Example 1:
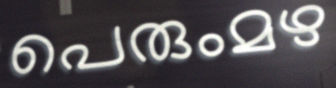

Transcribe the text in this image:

പെരുംമഴ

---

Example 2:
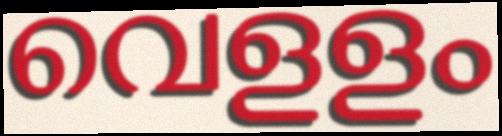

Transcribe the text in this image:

വെളളം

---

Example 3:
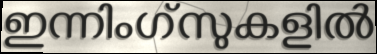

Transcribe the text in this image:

ഇന്നിംഗ്സുകളിൽ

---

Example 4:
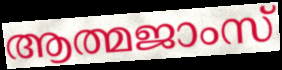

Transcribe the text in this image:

ആത്മജാംസ്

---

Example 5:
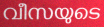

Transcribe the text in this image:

വീസയുടെ